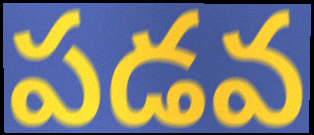
పడవ